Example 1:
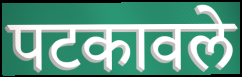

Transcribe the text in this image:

पटकावले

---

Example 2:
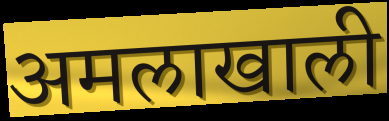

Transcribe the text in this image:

अमलाखाली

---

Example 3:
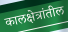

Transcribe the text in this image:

कालक्षेत्रांतील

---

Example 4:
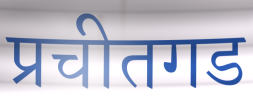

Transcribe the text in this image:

प्रचीतगड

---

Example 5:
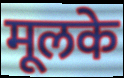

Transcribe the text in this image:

मूलके